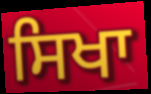
ਸਿਖਾ